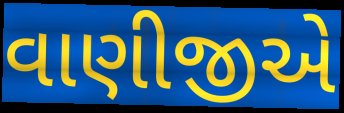
વાણીજીએ